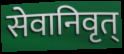
सेवानिवृत्